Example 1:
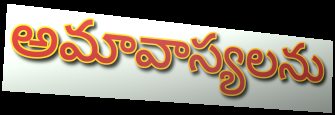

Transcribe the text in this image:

అమావాస్యలను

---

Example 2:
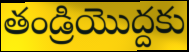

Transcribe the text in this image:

తండ్రియొద్దకు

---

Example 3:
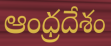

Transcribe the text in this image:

ఆంధ్రదేశం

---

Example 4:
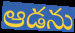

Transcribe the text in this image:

ఆడను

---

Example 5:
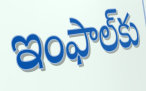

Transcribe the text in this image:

ఇంఫాల్‌కు